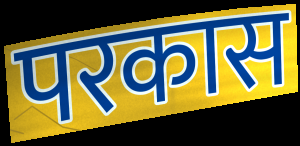
परकास